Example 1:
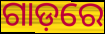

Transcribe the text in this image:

ଗାଡ଼ରେ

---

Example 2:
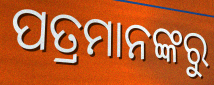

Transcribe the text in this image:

ପତ୍ରମାନଙ୍କରୁ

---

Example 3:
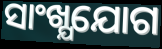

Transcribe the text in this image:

ସାଂଖ୍ଯଯୋଗ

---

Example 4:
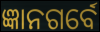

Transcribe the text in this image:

ଜ୍ଞାନଗର୍ବେ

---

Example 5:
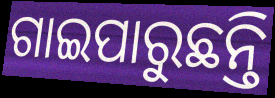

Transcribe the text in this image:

ଗାଇପାରୁଛନ୍ତି